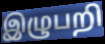
இழுபறி